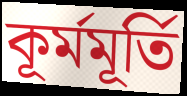
কূর্মমূর্তি